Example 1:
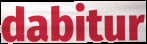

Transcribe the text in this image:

dabitur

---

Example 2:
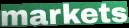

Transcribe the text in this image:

markets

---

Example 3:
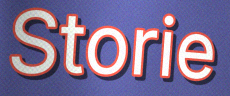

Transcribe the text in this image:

Storie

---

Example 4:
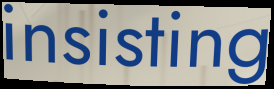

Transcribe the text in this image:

insisting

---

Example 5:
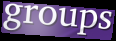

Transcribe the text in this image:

groups